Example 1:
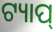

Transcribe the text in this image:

ଟ୍ୟାପ୍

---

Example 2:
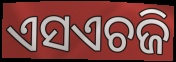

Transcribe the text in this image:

ଏସଏଚଜି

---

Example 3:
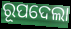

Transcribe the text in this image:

ରୂପଦେଲା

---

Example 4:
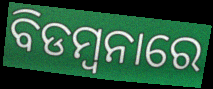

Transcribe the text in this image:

ବିଡମ୍ବନାରେ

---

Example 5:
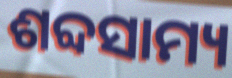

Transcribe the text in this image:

ଶବ୍ଦସାମ୍ୟ